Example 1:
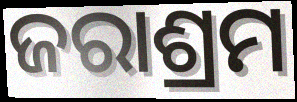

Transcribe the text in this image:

ଜରାଶ୍ରମ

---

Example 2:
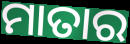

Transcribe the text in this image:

ମାତାର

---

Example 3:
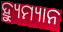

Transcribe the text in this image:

ହ୍ୟୁମ୍ୟାନ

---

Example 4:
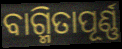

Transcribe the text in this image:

ବାଗ୍ମିତାପୂର୍ଣ୍ଣ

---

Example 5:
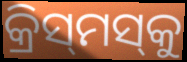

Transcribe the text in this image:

କ୍ରିସ୍‌ମସ୍‌କୁ